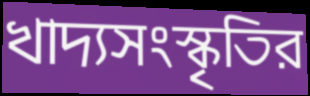
খাদ্যসংস্কৃতির